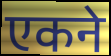
एकने